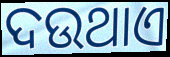
ଦଉଥାଏ